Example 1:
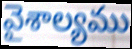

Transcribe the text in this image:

వైశాల్యము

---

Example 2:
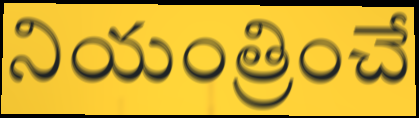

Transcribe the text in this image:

నియంత్రించే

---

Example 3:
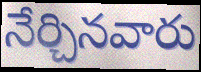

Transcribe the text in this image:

నేర్చినవారు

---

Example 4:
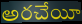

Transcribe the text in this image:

అరచేయీ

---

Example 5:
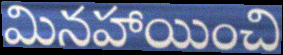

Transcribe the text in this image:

మినహాయించి